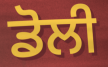
ਡੋਲੀ